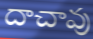
దాచావు